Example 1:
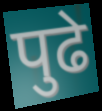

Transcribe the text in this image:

पुढे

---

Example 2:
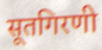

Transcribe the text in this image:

सूतगिरणी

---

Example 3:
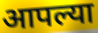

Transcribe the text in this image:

आपल्या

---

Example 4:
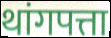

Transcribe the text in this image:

थांगपत्ता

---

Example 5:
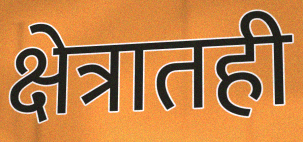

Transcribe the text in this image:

क्षेत्रातही